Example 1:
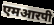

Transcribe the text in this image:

एमआरपी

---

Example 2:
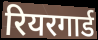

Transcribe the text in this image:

रियरगार्ड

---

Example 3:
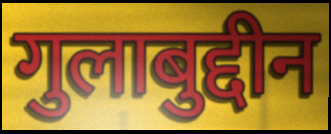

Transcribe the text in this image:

गुलाबुद्दीन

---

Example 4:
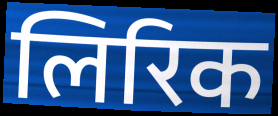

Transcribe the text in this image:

लिरिक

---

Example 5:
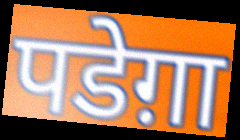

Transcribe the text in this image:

पडेग़ा